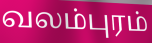
வலம்புரம்